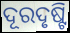
ଦୂରଦୃଷ୍ଟି